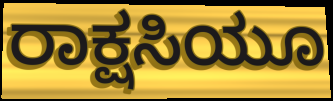
ರಾಕ್ಷಸಿಯೂ